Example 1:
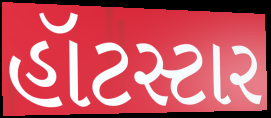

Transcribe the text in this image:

હૉટસ્ટાર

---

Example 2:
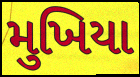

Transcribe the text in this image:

મુખિયા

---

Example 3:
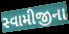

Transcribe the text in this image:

સ્વામીજીના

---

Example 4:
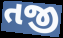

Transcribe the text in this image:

તજી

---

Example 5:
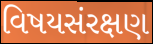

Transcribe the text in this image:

વિષયસંરક્ષણ